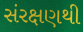
સંરક્ષણથી